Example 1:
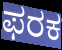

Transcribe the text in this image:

ಫರಕ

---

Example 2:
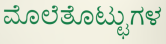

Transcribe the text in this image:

ಮೊಲೆತೊಟ್ಟುಗಳ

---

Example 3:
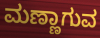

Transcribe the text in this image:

ಮಣ್ಣಾಗುವ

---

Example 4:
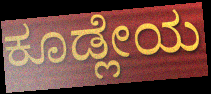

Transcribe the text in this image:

ಕೂಡ್ಲೇಯ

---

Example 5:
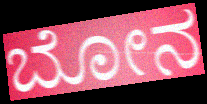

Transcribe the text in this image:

ಬೋನ